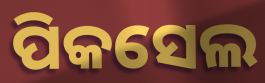
ପିକସେଲ